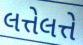
લત્તેલત્તે